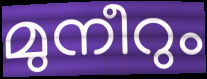
മുനീറും